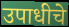
उपाधीचे